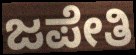
ಜಪೇತಿ